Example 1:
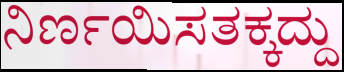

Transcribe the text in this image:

ನಿರ್ಣಯಿಸತಕ್ಕದ್ದು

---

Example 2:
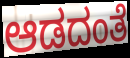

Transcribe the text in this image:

ಆಡದಂತೆ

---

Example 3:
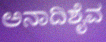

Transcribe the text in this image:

ಅನಾದಿಶೈವ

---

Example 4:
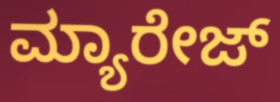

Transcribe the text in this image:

ಮ್ಯಾರೇಜ್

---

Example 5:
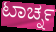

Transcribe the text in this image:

ಟಾರ್ಚ್ನ